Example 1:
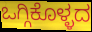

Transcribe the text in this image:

ಒಗ್ಗಿಕೊಳ್ಳದ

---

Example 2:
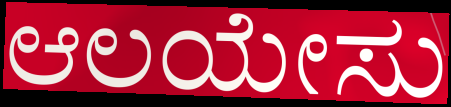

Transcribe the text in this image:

ಆಲಯೇಸು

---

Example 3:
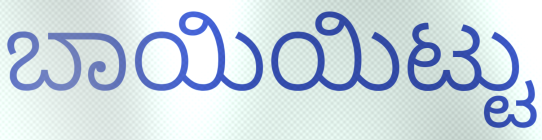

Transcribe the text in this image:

ಬಾಯಿಯಿಟ್ಟು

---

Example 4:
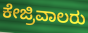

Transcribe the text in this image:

ಕೇಜ್ರಿವಾಲರು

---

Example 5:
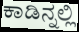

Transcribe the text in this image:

ಕಾಡಿನ್ನಲ್ಲಿ